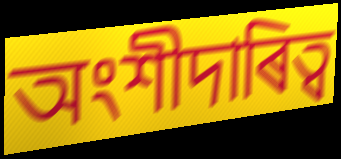
অংশীদাৰিত্ব